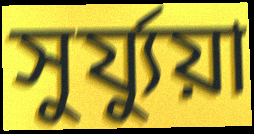
সুর্য্যুয়া